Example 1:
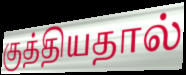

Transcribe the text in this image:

குத்தியதால்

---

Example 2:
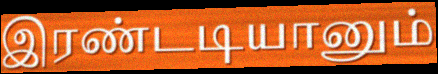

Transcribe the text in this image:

இரண்டடியானும்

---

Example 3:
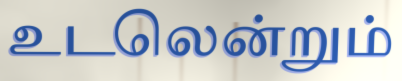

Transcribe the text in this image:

உடலென்றும்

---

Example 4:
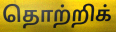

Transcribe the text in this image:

தொற்றிக்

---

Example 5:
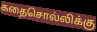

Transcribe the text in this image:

கதைசொல்லிக்கு